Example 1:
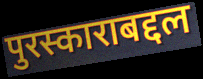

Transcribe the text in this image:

पुरस्काराबद्दल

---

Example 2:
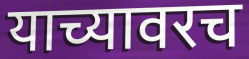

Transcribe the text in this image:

याच्यावरच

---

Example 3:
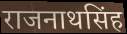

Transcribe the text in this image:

राजनाथसिंह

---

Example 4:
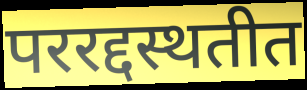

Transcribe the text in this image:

पररद्दस्थतीत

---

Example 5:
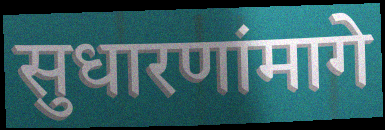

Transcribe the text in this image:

सुधारणांमागे